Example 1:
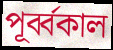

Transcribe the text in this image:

পূর্ব্বকাল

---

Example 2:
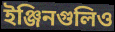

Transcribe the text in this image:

ইঞ্জিনগুলিও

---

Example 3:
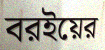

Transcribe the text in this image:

বরইয়ের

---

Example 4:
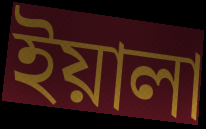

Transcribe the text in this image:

ইয়ালা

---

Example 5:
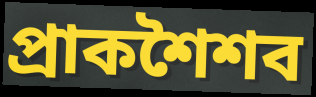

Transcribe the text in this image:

প্রাকশৈশব